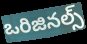
ఒరిజినల్స్